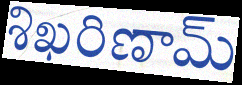
శిఖరిణామ్